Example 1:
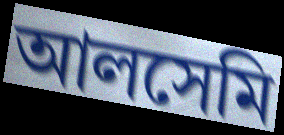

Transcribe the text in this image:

আলসেমি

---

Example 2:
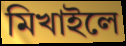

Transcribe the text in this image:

মিখাইলে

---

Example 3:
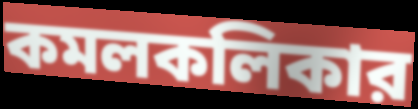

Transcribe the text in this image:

কমলকলিকার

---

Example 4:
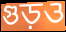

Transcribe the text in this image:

গুড়ও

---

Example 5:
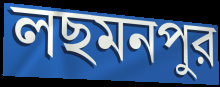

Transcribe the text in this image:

লছমনপুর